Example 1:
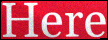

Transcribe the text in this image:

Here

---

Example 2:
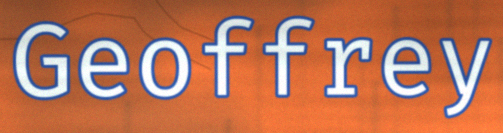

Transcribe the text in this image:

Geoffrey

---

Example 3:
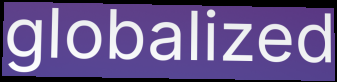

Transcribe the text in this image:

globalized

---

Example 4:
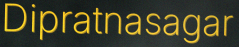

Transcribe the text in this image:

Dipratnasagar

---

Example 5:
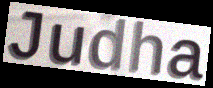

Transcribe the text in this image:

Judha